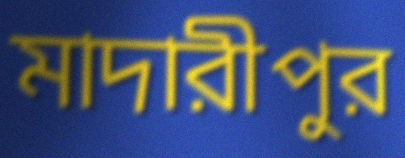
মাদারীপুর